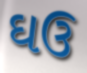
ઘઉ